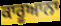
ਕਾਰੂਆਨਾ